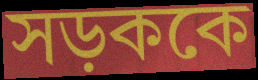
সড়ককে